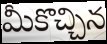
మీకొచ్చిన